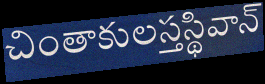
చింతాకులస్తస్థివాన్